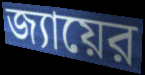
জ্যায়ের